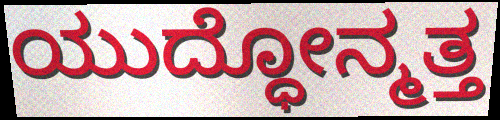
ಯುದ್ಧೋನ್ಮತ್ತ